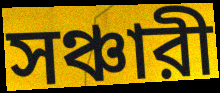
সঞ্চারী